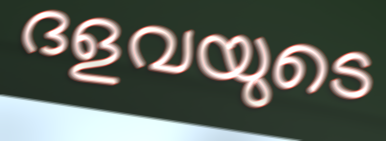
ദളവയുടെ